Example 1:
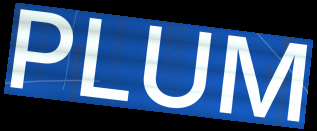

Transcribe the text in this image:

PLUM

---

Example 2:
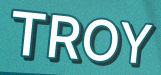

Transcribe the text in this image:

TROY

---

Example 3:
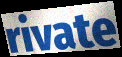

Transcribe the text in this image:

rivate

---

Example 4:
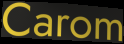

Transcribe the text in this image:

Carom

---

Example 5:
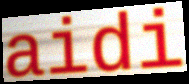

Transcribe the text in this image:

aidi